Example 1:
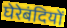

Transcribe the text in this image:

घेरेबंदियों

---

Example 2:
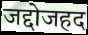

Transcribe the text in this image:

जद्दोजहद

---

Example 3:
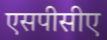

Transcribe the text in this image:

एसपीसीए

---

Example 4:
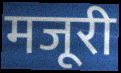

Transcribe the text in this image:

मजूरी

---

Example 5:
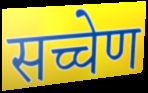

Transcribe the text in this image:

सच्चेण